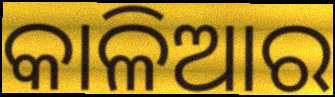
କାଳିଆର